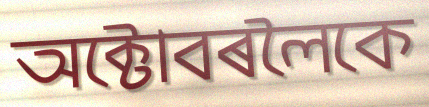
অক্টোবৰলৈকে